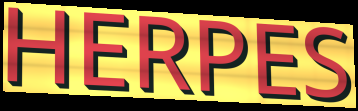
HERPES